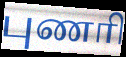
புணரி